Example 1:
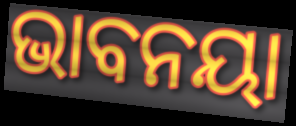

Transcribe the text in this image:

ଭାବନୟା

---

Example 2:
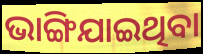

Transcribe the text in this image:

ଭାଙ୍ଗିଯାଇଥିବା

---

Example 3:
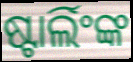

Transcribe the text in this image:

ଷ୍ଟାର୍ଲିଂଙ୍କ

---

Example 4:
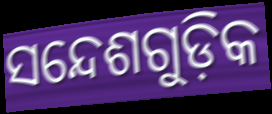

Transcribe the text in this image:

ସନ୍ଦେଶଗୁଡ଼ିକ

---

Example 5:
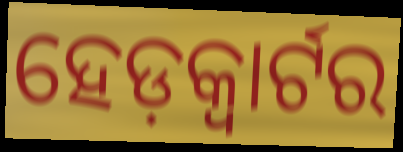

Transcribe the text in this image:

ହେଡ଼କ୍ୱାର୍ଟର